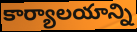
కార్యాలయాన్ని